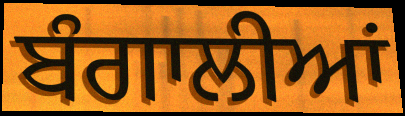
ਬੰਗਾਲੀਆਂ